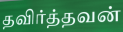
தவிர்த்தவன்